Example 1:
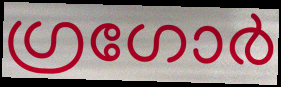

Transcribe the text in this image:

ഗ്രഗോർ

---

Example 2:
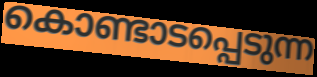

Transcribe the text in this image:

കൊണ്ടാടപ്പെടുന്ന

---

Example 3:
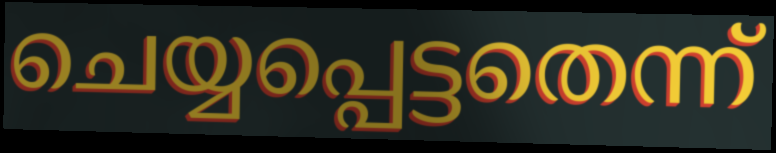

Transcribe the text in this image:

ചെയ്യപ്പെട്ടതെന്ന്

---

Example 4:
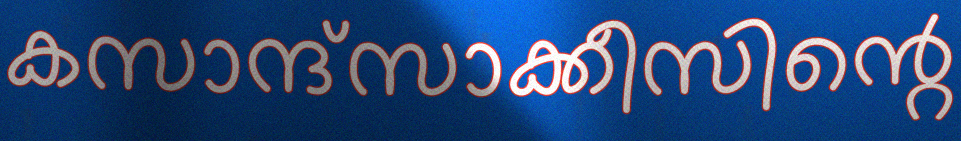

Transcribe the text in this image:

കസാന്ദ്സാക്കീസിന്റെ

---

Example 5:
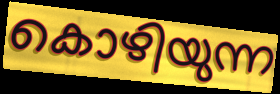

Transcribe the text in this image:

കൊഴിയുന്ന